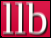
llb